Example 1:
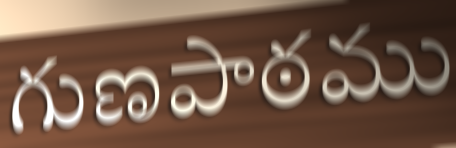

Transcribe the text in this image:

గుణపాఠము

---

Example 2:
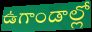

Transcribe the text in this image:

ఉగాండాల్లో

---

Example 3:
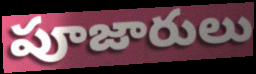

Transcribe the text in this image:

పూజారులు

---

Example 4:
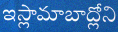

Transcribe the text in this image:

ఇస్లామాబాద్లోని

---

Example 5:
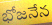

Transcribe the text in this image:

భోజనేన